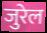
जुरेल